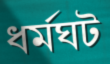
ধর্মঘট